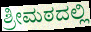
ಶ್ರೀಮಠದಲ್ಲಿ